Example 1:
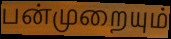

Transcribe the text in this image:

பன்முறையும்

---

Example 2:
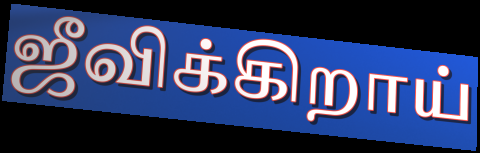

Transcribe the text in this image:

ஜீவிக்கிறாய்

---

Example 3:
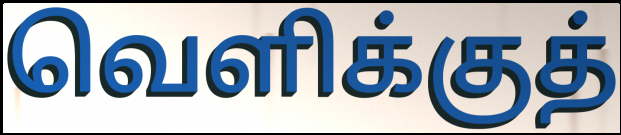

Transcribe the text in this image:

வெளிக்குத்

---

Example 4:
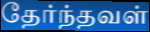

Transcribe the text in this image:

தேர்ந்தவள்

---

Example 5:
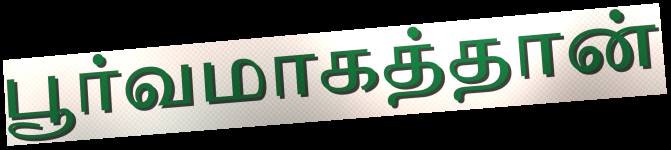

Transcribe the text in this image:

பூர்வமாகத்தான்